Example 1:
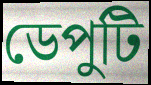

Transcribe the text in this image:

ডেপুটি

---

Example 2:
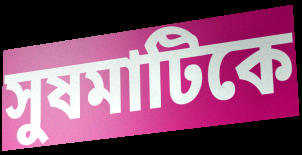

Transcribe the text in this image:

সুষমাটিকে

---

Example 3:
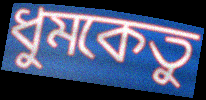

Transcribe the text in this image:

ধুমকেতু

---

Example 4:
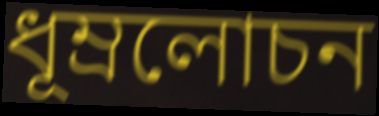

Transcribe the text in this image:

ধূম্রলোচন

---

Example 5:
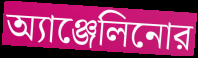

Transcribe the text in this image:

অ্যাঞ্জেলিনোর